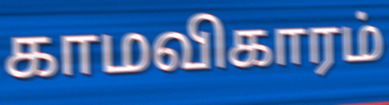
காமவிகாரம்